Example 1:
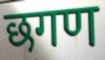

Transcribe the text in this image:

छगण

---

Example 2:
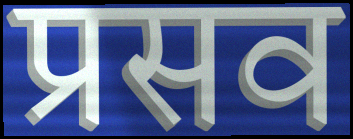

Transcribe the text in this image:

प्रसव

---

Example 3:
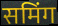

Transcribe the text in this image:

समिंग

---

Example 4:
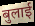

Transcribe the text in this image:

बुलाई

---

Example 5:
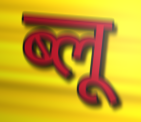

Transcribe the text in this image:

ब्लू